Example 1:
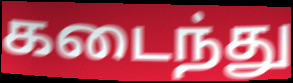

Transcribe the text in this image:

கடைந்து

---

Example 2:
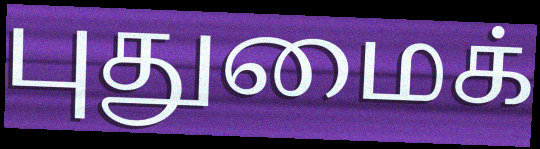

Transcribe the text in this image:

புதுமைக்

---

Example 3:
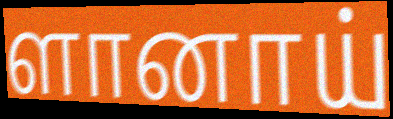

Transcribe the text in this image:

ளானாய்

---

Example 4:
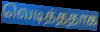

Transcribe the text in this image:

வெடித்ததாக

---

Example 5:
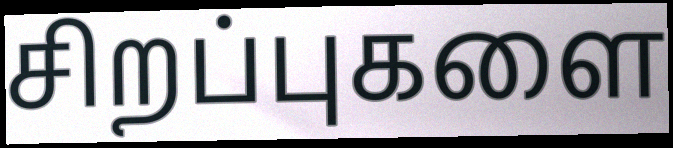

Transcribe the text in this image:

சிறப்புகளை